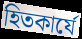
হিতকার্যে